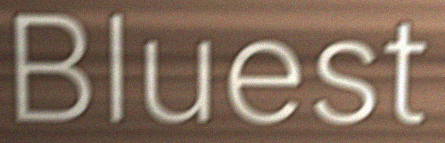
Bluest